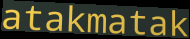
atakmatak